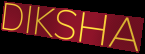
DIKSHA